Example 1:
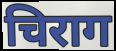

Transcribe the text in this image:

चिराग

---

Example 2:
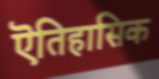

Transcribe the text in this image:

ऎतिहासिक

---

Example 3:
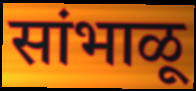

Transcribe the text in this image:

सांभाळू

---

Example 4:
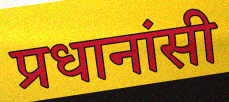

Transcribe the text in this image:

प्रधानांसी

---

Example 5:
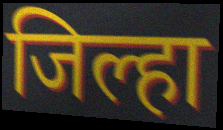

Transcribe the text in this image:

जिल्हा